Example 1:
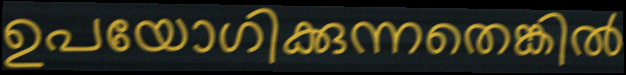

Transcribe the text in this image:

ഉപയോഗിക്കുന്നതെങ്കിൽ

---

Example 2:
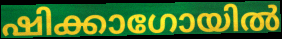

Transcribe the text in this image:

ഷിക്കാഗോയിൽ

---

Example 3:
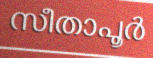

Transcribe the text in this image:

സീതാപൂർ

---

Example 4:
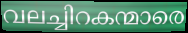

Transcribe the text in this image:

വലച്ചിറകന്മാരെ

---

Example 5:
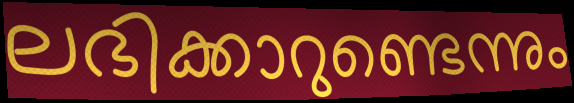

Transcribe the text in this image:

ലഭിക്കാറുണ്ടെന്നും